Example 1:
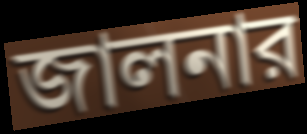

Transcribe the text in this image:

জালনার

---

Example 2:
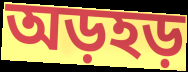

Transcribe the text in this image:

অড়হড়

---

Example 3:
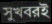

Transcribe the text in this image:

সুখবরই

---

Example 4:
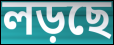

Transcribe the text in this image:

লড়ছে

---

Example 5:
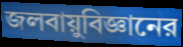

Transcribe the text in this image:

জলবায়ুবিজ্ঞানের